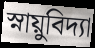
স্নায়ুবিদ্যা